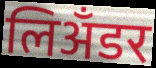
लिअँडर